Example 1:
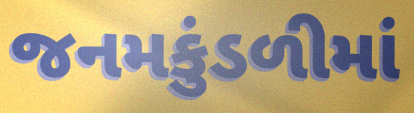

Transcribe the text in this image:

જનમકુંડળીમાં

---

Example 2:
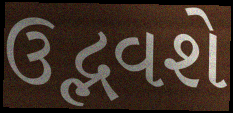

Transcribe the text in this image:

ઉદ્ભવશે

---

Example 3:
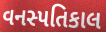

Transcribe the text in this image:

વનસ્પતિકાલ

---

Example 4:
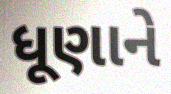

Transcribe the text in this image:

ધૂણાને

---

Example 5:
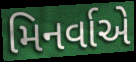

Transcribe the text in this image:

મિનર્વાએ